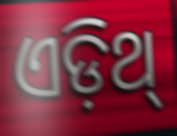
ଏଡ଼ିଥ୍